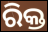
ରିକ୍ତ